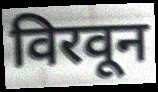
विरवून